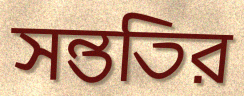
সন্ততির